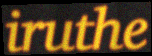
iruthe